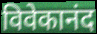
विवेकानंद